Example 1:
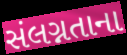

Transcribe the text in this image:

સંલગ્નતાના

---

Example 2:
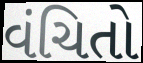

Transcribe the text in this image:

વંચિતો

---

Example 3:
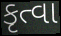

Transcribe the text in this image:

કૃત્વા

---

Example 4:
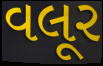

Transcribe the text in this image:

વલૂર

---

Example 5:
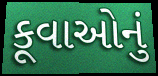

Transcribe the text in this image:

કૂવાઓનું